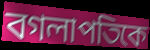
বগলাপতিকে